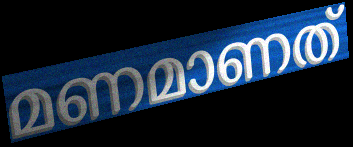
മണമാണത്